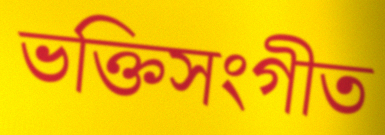
ভক্তিসংগীত